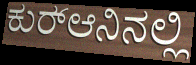
ಕುರ್‍ಆನಿನಲ್ಲಿ